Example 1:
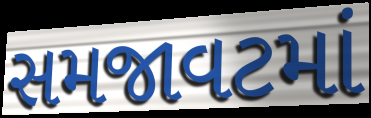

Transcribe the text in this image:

સમજાવટમાં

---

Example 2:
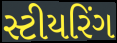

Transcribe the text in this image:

સ્ટીયરિંગ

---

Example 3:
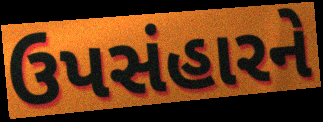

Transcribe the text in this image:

ઉપસંહારને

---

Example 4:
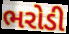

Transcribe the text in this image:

ભરોડી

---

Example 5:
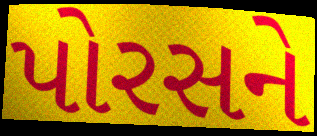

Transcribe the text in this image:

પોરસને